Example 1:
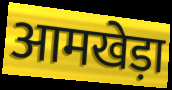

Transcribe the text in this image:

आमखेड़ा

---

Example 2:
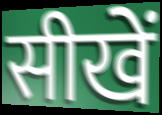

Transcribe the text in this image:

सीखें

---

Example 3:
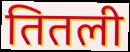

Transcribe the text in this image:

तितली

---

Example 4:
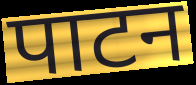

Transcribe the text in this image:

पाटन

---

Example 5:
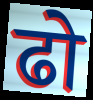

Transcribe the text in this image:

ढो